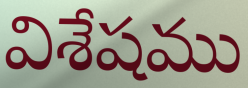
విశేషము